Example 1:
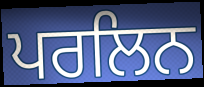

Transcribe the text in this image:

ਪਰਲਿਨ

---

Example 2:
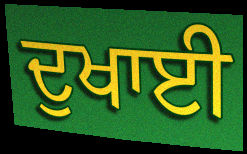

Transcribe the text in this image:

ਦੁਖਾਈ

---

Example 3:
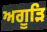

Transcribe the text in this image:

ਅਗੂੜਿ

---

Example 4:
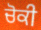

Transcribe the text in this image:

ਚੋਕੀ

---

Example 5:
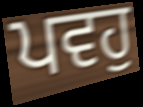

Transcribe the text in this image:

ਪਵਹੁ